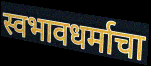
स्वभावधर्माचा